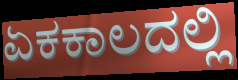
ಏಕಕಾಲದಲ್ಲಿ